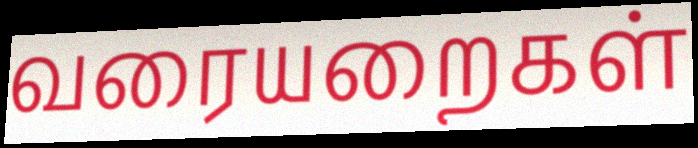
வரையறைகள்